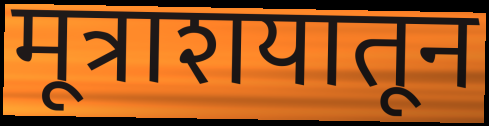
मूत्राशयातून